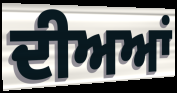
ਦੀਅਆਂ